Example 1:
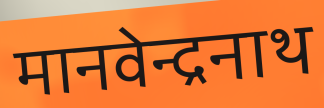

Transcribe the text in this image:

मानवेन्द्रनाथ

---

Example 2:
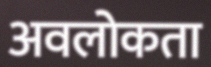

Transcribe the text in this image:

अवलोकता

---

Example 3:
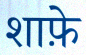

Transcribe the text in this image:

शाफ़े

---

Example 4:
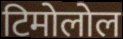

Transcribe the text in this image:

टिमोलोल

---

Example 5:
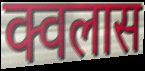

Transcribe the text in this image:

क्वलास